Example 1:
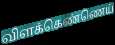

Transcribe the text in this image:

விளக்கெண்ணெய்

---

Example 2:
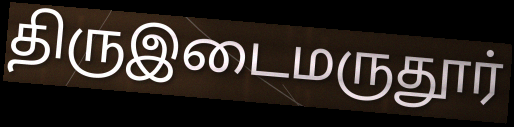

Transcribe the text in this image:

திருஇடைமருதூர்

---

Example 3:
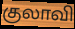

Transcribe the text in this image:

குலாவி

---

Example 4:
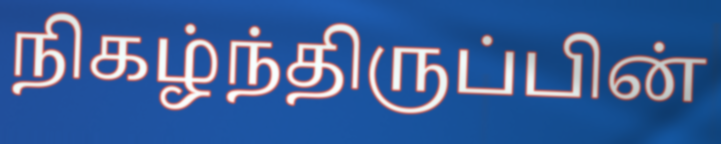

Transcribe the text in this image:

நிகழ்ந்திருப்பின்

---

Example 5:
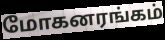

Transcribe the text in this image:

மோகனரங்கம்